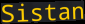
Sistan